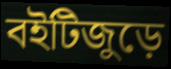
বইটিজুড়ে